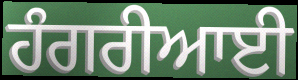
ਹੰਗਰੀਆਈ